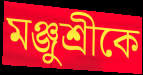
মঞ্জুশ্রীকে